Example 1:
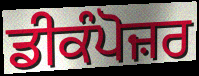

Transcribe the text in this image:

ਡੀਕੰਪੋਜ਼ਰ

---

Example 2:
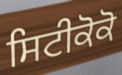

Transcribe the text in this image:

ਸਿਟੀਕੋਕੋ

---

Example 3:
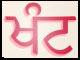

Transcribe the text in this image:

ਖੰਟ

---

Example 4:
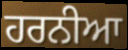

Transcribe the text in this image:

ਹਰਨੀਆ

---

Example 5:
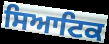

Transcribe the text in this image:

ਸਿਆਟਿਕ